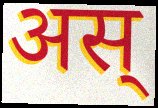
अस्